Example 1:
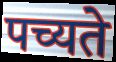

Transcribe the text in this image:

पच्यते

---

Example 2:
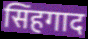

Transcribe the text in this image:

सिंहगाद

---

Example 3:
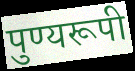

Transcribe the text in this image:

पुण्यरूपी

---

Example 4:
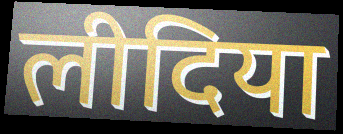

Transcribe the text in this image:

लीदिया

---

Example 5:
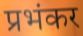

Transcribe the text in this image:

प्रभंकर